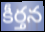
కీర్తన